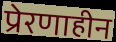
प्रेरणाहीन